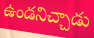
ఉండనిచ్చాడు